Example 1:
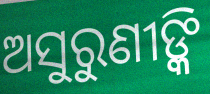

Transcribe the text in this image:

ଅସୁରୁଣୀଙ୍କି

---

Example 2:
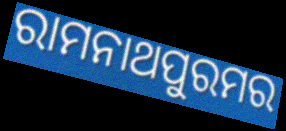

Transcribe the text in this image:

ରାମନାଥପୁରମର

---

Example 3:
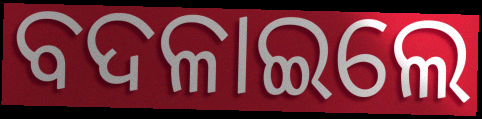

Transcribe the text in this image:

ବଦଳାଇଲେ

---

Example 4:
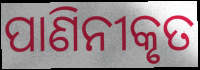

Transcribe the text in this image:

ପାଣିନୀକୃତ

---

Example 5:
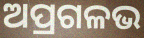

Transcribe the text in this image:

ଅପ୍ରଗଳଭ